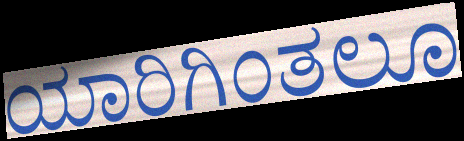
ಯಾರಿಗಿಂತಲೂ